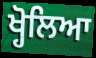
ਖ੍ਹੋਲਿਆ